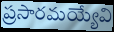
ప్రసారమయ్యేవి